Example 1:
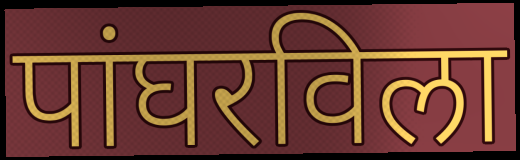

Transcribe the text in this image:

पांघरविला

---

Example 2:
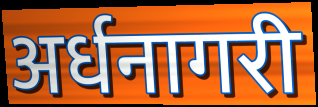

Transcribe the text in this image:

अर्धनागरी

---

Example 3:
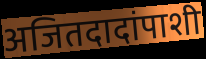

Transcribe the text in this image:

अजितदादांपाशी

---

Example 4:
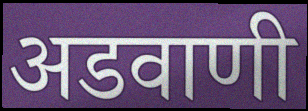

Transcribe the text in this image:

अडवाणी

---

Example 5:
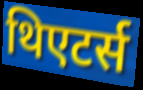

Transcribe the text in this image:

थिएटर्स